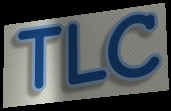
TLC